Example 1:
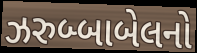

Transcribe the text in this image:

ઝરુબ્બાબેલનો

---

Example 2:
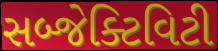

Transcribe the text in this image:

સબ્જેક્ટિવિટી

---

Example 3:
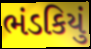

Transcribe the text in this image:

ભંડકિયું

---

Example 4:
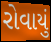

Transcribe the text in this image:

રોવાયું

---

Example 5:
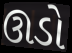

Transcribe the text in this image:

ઊડો